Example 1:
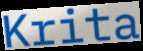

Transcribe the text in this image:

Krita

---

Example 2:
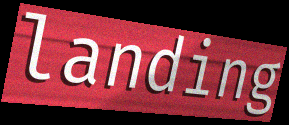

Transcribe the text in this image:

landing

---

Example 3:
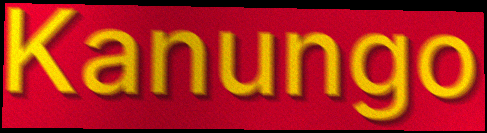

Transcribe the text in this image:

Kanungo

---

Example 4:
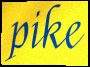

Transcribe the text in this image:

pike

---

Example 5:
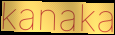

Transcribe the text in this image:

kanaka